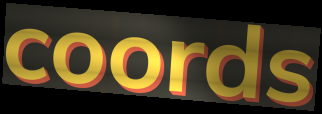
coords